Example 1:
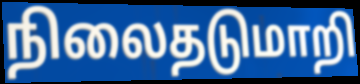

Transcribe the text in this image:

நிலைதடுமாறி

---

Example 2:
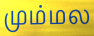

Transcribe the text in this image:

மும்மல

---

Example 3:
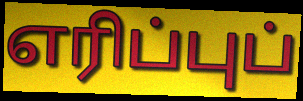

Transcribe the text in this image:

எரிப்புப்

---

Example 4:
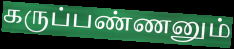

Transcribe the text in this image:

கருப்பண்ணனும்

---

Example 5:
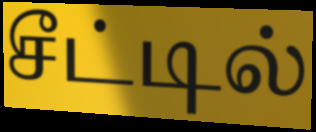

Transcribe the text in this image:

சீட்டில்